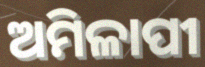
ଅମିଳାପୀ